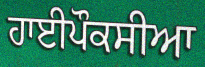
ਹਾਈਪੌਕਸੀਆ